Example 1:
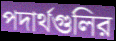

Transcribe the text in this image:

পদার্থগুলির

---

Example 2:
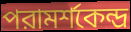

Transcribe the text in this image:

পরামর্শকেন্দ্র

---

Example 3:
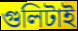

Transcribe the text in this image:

গুলিটাই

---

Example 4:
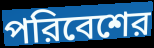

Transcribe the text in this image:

পরিবেশের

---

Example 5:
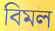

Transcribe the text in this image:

বিমল